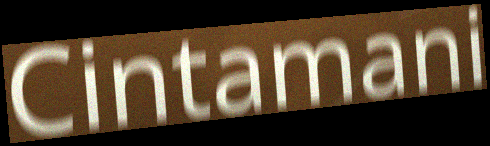
Cintamani